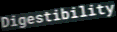
Digestibility